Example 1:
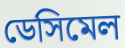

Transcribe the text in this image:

ডেসিমেল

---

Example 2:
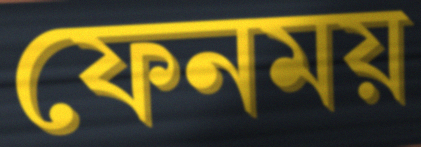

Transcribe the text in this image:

ফেনময়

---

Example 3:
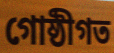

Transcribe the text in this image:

গোষ্ঠীগত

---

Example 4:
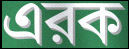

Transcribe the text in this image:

এরক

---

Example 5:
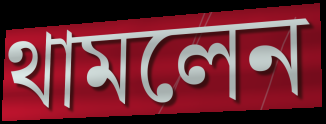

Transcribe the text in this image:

থামলেন